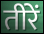
तीरें